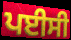
ਪਈਸੀ